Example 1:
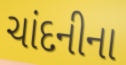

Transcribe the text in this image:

ચાંદનીના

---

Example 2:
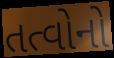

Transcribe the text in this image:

તત્વોનો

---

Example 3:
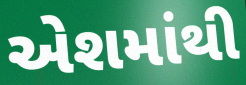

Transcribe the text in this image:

એશમાંથી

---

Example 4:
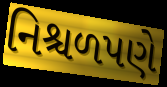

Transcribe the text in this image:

નિશ્ચળપણે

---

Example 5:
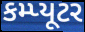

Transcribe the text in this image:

કમ્પ્યૂટર